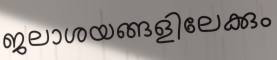
ജലാശയങ്ങളിലേക്കും